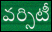
వర్సిటీ